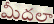
మీదలా